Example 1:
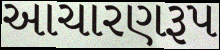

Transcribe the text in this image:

આચારણરૂપ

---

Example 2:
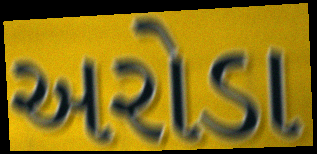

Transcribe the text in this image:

અરોડા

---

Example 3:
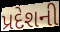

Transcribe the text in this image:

પ્રદેશની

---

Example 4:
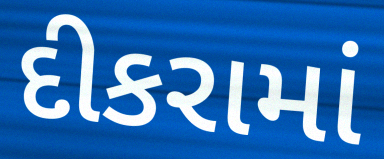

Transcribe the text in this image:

દીકરામાં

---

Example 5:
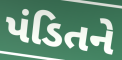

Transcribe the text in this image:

પંડિતને